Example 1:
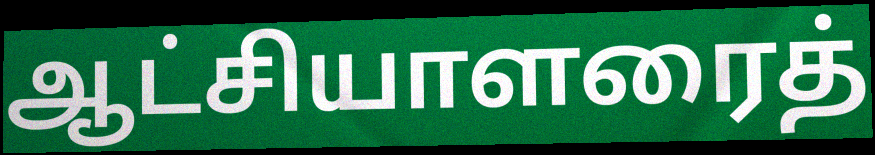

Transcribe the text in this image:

ஆட்சியாளரைத்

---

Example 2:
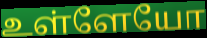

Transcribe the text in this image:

உள்ளேயோ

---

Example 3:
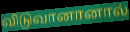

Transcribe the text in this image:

விடுவானானால்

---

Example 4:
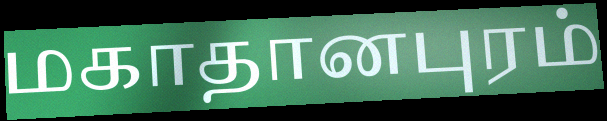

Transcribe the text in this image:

மகாதானபுரம்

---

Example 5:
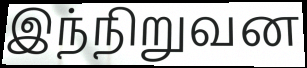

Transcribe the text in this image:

இந்நிறுவன